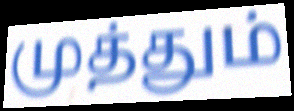
முத்தும்